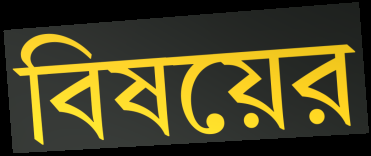
বিষয়ের